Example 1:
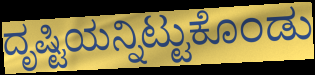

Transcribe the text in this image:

ದೃಷ್ಟಿಯನ್ನಿಟ್ಟುಕೊಂಡು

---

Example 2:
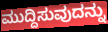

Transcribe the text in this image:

ಮುದ್ದಿಸುವುದನ್ನು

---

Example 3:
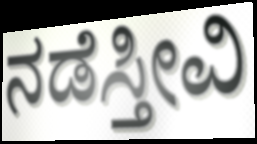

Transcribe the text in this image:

ನಡೆಸ್ತೀವಿ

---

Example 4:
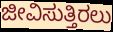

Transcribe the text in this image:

ಜೀವಿಸುತ್ತಿರಲು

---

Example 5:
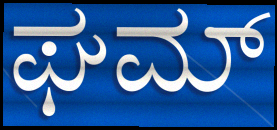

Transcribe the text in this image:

ಘಮ್